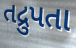
તદ્રુપતા